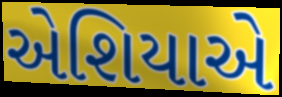
એશિયાએ